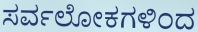
ಸರ್ವಲೋಕಗಳಿಂದ